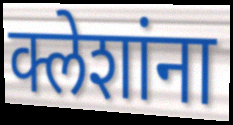
क्लेशांना